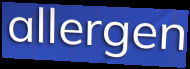
allergen